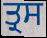
ਤ੍ਰਸ